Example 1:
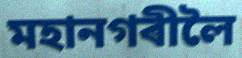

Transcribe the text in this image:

মহানগৰীলৈ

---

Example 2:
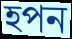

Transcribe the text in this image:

হপন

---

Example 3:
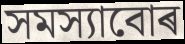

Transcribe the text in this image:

সমস্যাবোৰ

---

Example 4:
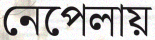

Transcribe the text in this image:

নেপেলায়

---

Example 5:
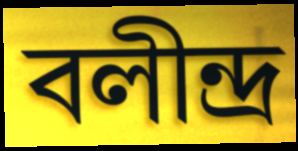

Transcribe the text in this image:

বলীন্দ্ৰ